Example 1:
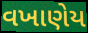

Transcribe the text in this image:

વખાણેય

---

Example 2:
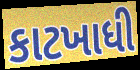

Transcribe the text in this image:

કાટખાધી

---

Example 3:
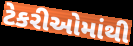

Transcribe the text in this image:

ટેકરીઓમાંથી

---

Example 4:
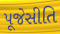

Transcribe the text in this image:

પૂજેસીતિ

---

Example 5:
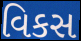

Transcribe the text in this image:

વિકસ